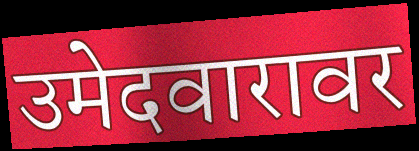
उमेदवारावर